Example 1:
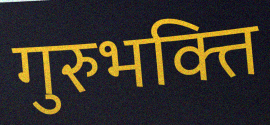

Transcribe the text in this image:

गुरुभक्ति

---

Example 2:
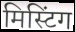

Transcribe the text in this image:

मिस्टिंग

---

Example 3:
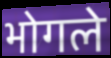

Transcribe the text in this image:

भोगले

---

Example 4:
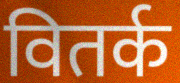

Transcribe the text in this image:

वितर्क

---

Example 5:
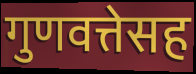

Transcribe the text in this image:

गुणवत्तेसह